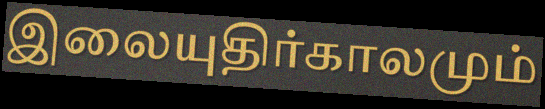
இலையுதிர்காலமும்